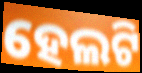
ହେଲଟି